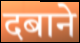
दबाने